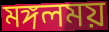
মঙ্গলময়